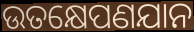
ଉତକ୍ଷେପଣଯାନ